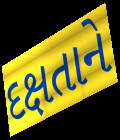
દક્ષતાને